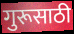
गुरूसाठी